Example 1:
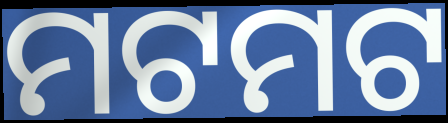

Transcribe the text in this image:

ମଟମଟ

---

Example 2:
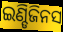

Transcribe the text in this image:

ଇଣ୍ଡିଜିନସ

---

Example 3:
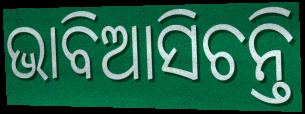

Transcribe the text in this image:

ଭାବିଆସିଚନ୍ତି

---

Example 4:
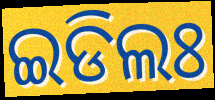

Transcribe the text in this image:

ଇଡିଲଃ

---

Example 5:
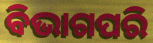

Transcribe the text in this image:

ବିଭାଗପରି